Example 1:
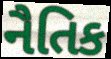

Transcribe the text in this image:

નૈતિક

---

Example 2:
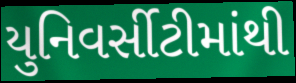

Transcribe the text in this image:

યુનિવર્સીટીમાંથી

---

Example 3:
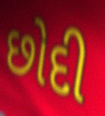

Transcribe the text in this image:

છોદી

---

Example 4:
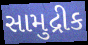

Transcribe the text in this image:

સામુદ્રીક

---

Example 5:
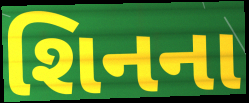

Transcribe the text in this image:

શિનના